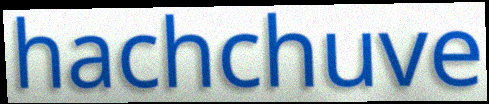
hachchuve